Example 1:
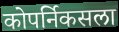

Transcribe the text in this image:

कोपर्निकसला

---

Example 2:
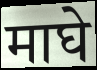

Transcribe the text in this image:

माघे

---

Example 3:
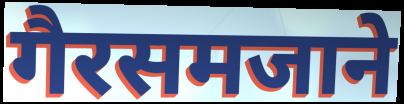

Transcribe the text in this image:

गैरसमजाने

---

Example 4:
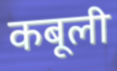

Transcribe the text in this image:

कबूली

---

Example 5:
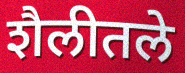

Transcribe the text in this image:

शैलीतले